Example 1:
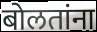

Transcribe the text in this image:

बोलतांना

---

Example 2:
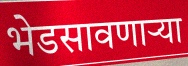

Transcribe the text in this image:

भेडसावणार्‍या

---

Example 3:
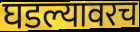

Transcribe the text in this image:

घडल्यावरच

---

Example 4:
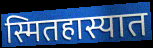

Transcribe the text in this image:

स्मितहास्यात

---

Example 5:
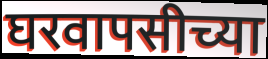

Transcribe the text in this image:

घरवापसीच्या